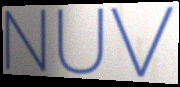
NUV